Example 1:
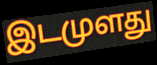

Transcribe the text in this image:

இடமுளது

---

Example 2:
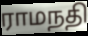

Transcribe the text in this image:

ராமநதி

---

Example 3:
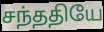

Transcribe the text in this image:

சந்ததியே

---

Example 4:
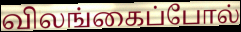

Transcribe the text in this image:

விலங்கைப்போல்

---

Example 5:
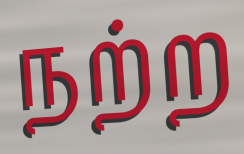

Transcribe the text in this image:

நற்ற